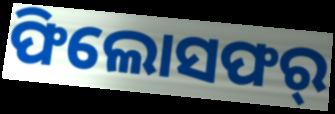
ଫିଲୋସଫର୍